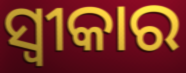
ସ୍ଵୀକାର